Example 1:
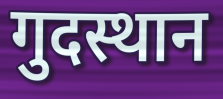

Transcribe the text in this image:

गुदस्थान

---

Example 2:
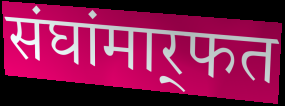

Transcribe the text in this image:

संघांमार्फत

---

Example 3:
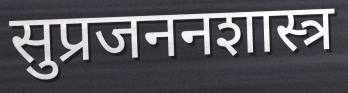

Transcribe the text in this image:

सुप्रजननशास्त्र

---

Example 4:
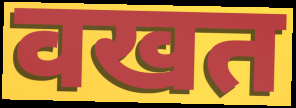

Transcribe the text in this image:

वखत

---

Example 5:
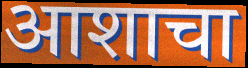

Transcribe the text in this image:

आशाचा